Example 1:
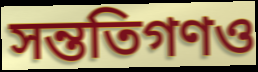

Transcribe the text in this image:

সন্ততিগণও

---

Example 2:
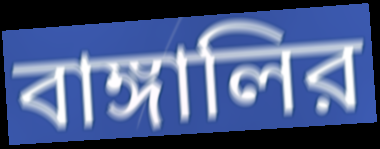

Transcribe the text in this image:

বাঙ্গালির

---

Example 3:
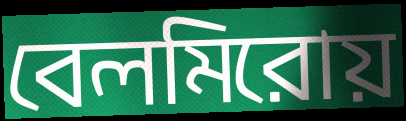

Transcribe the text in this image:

বেলমিরোয়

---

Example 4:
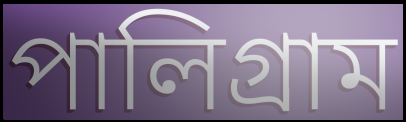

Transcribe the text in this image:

পালিগ্রাম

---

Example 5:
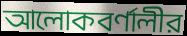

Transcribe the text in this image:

আলোকবর্ণালীর